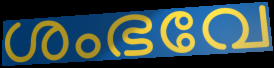
ശംഭവേ